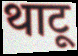
थाटू